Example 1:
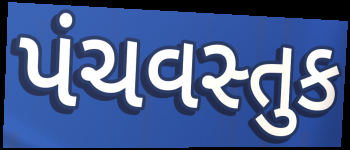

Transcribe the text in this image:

પંચવસ્તુક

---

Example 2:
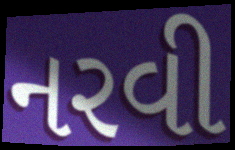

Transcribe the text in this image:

નરવી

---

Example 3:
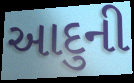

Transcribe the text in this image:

આદુની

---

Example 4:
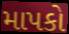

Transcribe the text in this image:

માપકો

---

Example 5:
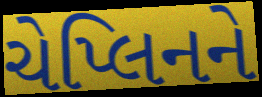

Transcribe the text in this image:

ચેપ્લિનને